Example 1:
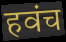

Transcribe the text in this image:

हवंच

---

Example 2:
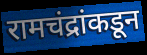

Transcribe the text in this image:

रामचंद्रांकडून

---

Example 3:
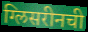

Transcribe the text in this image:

ग्लिसरीनची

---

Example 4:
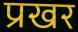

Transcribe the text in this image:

प्रखर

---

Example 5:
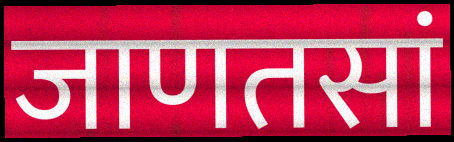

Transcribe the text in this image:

जाणतसां